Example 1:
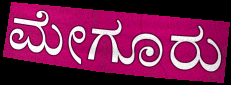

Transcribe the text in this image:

ಮೇಗೂರು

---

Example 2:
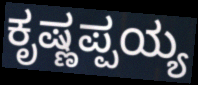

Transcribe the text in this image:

ಕೃಷ್ಣಪ್ಪಯ್ಯ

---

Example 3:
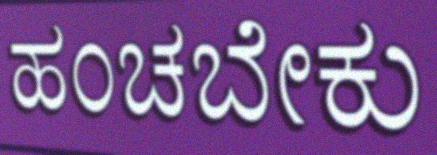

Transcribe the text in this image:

ಹಂಚಬೇಕು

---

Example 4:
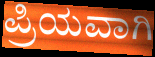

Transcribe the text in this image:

ಪ್ರಿಯವಾಗಿ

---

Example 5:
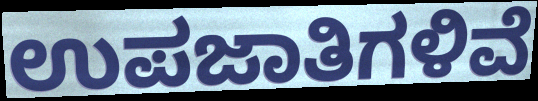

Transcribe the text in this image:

ಉಪಜಾತಿಗಳಿವೆ